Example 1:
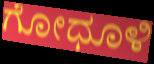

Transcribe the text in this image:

ಗೋಧೂಳಿ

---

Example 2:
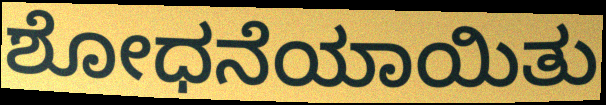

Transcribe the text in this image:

ಶೋಧನೆಯಾಯಿತು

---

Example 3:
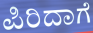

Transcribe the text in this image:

ಪಿರಿದಾಗೆ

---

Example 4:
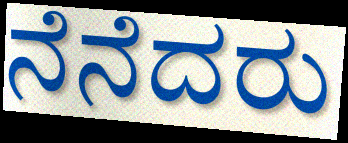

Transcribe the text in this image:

ನೆನೆದರು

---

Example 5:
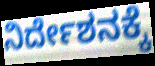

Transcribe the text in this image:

ನಿರ್ದೇಶನಕ್ಕೆ